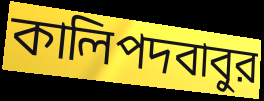
কালিপদবাবুর